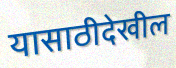
यासाठीदेखील